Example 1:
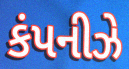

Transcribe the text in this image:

કંપનીઝે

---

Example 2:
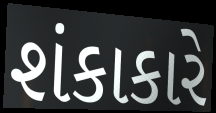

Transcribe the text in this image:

શંકાકારે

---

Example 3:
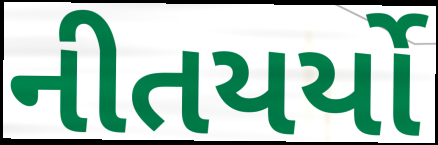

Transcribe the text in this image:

નીતયર્યો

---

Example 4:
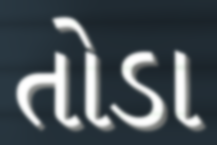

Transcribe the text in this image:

તોડા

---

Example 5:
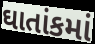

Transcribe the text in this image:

ઘાતાંકમાં